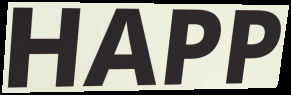
HAPP